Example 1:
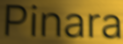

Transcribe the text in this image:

Pinara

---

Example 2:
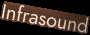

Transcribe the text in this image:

Infrasound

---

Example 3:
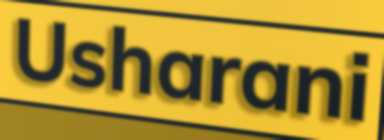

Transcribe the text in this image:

Usharani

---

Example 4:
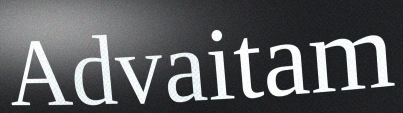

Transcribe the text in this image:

Advaitam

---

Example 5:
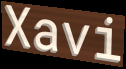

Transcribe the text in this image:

Xavi